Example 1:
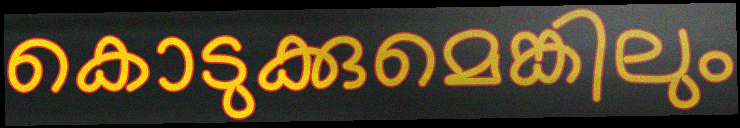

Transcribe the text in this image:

കൊടുക്കുമെങ്കിലും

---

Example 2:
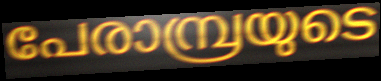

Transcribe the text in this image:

പേരാമ്പ്രയുടെ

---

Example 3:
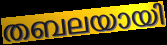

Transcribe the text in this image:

തബലയായി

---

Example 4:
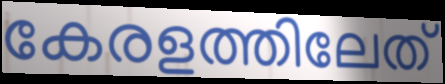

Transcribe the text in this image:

കേരളത്തിലേത്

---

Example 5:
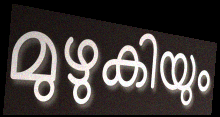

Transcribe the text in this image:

മുഴുകിയും